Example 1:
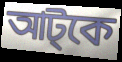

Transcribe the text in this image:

আট্‌কে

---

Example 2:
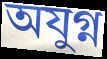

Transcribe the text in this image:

অযুগ্ন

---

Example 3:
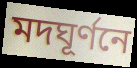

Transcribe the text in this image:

মদঘূর্ণনে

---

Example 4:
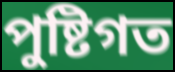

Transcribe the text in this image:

পুষ্টিগত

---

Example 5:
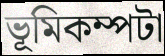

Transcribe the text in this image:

ভূমিকম্পটা